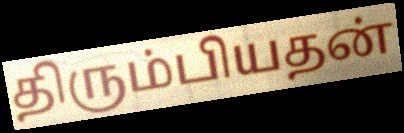
திரும்பியதன்